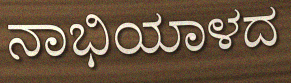
ನಾಭಿಯಾಳದ